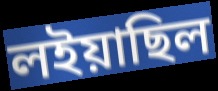
লইয়াছিল